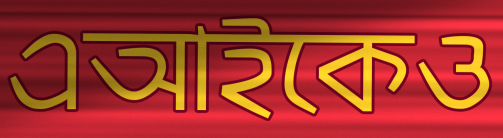
এআইকেও